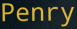
Penry